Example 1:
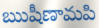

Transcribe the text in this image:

ఋషీణామపి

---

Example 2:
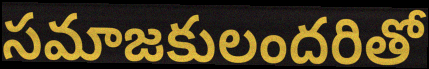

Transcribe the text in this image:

సమాజకులందరితో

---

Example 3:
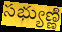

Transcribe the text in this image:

సభ్యుణ్ణి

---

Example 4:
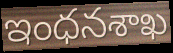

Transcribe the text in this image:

ఇంధనశాఖ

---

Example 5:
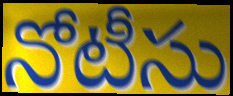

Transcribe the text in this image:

నోటీసు